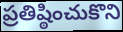
ప్రతిష్ఠించుకొని